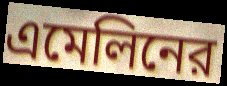
এমেলিনের